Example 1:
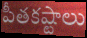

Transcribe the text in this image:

పీతకష్టాలు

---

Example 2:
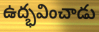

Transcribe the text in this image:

ఉద్భవించాడు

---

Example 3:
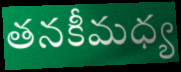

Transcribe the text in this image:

తనకీమధ్య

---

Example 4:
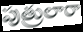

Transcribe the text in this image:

పుత్రులారా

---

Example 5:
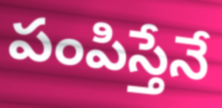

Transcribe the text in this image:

పంపిస్తేనే